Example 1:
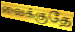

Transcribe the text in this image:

வைக்குதே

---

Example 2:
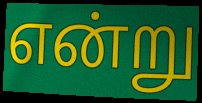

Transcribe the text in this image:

என்று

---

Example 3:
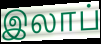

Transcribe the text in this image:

இலாப்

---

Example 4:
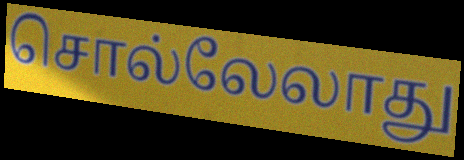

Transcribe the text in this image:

சொல்லேலாது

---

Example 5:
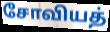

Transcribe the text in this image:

சோவியத்